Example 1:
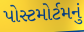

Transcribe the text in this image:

પોસ્ટમોર્ટમનું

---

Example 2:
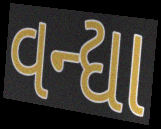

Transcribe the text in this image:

વન્દ્યા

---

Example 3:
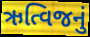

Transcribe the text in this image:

ઋત્વિજનું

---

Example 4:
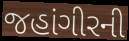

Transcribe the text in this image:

જહાંગીરની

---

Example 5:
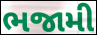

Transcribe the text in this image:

ભજામી